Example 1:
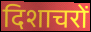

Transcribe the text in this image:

दिशाचरों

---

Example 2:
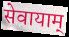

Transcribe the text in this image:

सेवायाम्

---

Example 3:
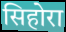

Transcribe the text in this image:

सिहोरा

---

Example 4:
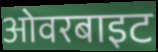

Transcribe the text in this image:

ओवरबाइट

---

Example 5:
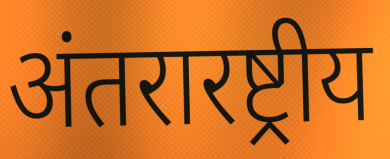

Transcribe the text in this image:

अंतरारष्ट्रीय